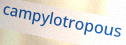
campylotropous